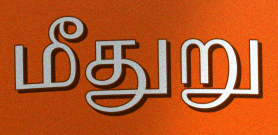
மீதுறு